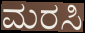
ಮರಸಿ